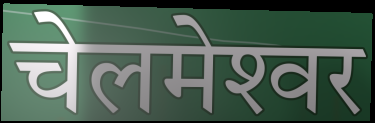
चेलमेश्‍वर